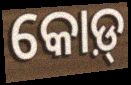
କୋଡ଼୍